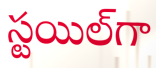
స్టయిల్‌గా